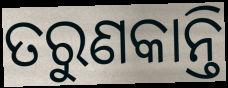
ତରୁଣକାନ୍ତି